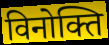
विनोक्ति